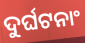
ଦୁର୍ଘଟନାଂ